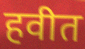
हवीत